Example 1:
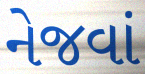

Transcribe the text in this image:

નેજવાં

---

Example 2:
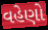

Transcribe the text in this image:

વહેણો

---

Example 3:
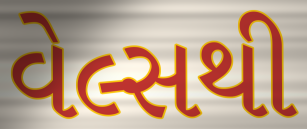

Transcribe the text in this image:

વેલ્સથી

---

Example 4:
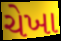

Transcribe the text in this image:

ચેખા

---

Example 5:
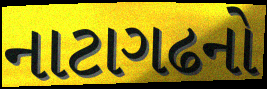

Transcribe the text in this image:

નાટાગઢનો